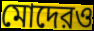
মোদেরও